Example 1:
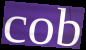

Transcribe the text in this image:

cob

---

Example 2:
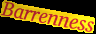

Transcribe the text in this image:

Barrenness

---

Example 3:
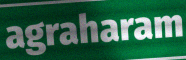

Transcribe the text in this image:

agraharam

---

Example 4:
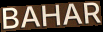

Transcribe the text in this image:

BAHAR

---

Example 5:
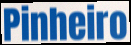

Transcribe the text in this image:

Pinheiro